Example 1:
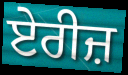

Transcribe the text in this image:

ਏਰੀਜ਼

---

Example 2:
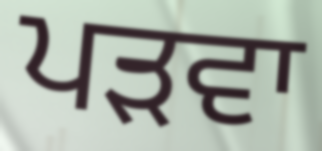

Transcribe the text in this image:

ਪੜਵਾ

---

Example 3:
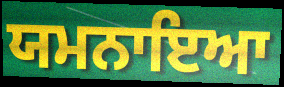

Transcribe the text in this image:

ਯਮਨਾਇਆ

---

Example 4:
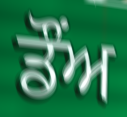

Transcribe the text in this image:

ਡੌਂਅ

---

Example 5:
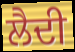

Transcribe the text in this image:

ਲੈਦੀ